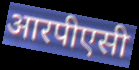
आरपीएसी